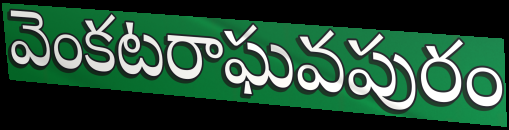
వెంకటరాఘవపురం